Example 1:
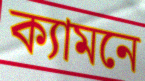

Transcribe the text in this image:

ক্যামনে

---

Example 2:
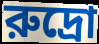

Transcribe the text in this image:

রুদ্রো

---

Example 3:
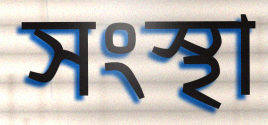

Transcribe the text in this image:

সংস্থা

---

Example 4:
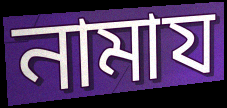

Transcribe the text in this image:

নামায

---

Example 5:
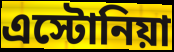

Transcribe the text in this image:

এস্টোনিয়া